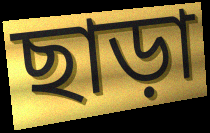
ছাড়া